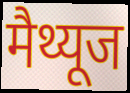
मैथ्यूज